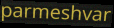
parmeshvar